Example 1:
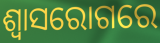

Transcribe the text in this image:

ଶ୍ଵାସରୋଗରେ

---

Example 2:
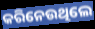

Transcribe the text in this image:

କରିନେଉଥିଲେ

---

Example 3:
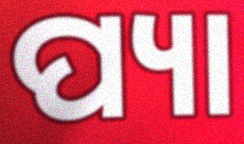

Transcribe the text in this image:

ପ୍ୟା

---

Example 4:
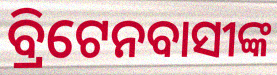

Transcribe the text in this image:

ବ୍ରିଟେନବାସୀଙ୍କ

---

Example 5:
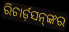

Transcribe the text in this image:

ରିଚାର୍ଡ଼ସନ୍‌ଙ୍କର